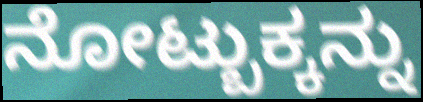
ನೋಟ್ಬುಕ್ಕನ್ನು